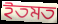
ইতমত